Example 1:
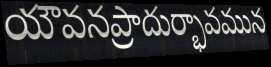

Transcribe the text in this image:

యౌవనప్రాదుర్భావమున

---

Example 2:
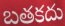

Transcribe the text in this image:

బతకదు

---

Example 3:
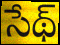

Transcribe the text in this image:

సేథ్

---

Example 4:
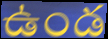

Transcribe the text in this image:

ఉండ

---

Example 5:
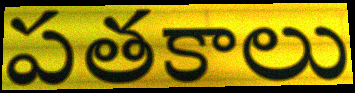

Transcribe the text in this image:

పతకాలు